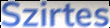
Szirtes